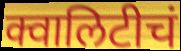
क्वालिटीचं